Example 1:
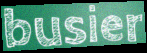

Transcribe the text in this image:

busier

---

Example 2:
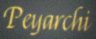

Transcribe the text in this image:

Peyarchi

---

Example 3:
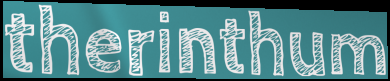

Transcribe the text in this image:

therinthum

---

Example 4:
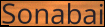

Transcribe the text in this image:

Sonabai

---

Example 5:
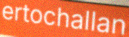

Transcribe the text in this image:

ertochallan